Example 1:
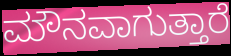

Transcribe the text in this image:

ಮೌನವಾಗುತ್ತಾರೆ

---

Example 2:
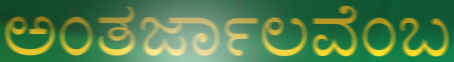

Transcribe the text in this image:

ಅಂತರ್ಜಾಲವೆಂಬ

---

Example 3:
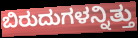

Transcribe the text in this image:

ಬಿರುದುಗಳನ್ನಿತ್ತು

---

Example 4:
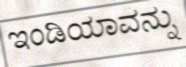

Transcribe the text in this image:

ಇಂಡಿಯಾವನ್ನು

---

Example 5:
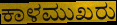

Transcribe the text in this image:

ಕಾಳಮುಖರು